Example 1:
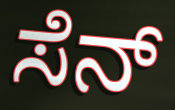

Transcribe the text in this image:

ಸೆನ್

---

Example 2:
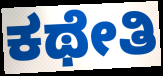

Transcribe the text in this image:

ಕಥೇತಿ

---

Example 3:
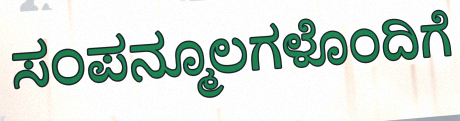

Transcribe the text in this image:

ಸಂಪನ್ಮೂಲಗಳೊಂದಿಗೆ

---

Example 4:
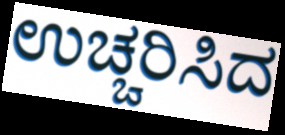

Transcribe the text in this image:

ಉಚ್ಚರಿಸಿದ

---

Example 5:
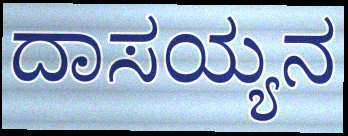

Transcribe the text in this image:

ದಾಸಯ್ಯನ